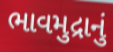
ભાવમુદ્રાનું